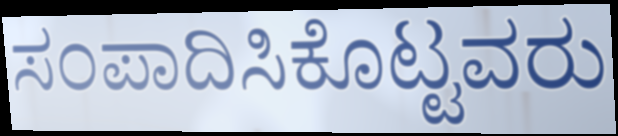
ಸಂಪಾದಿಸಿಕೊಟ್ಟವರು